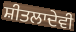
ਸ਼ੀਤਲਾਦੇਵੀ